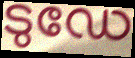
ടുഡേ